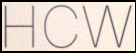
HCW